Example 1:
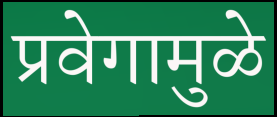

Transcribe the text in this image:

प्रवेगामुळे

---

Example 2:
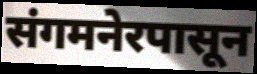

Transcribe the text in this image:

संगमनेरपासून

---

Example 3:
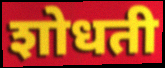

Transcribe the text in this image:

शोधती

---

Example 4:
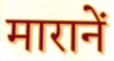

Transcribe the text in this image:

मारानें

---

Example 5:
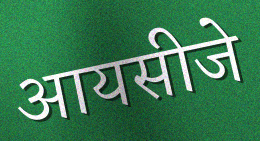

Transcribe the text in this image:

आयसीजे